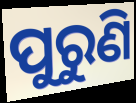
ପୁରୁଣି